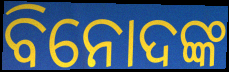
ବିନୋଦଙ୍କ